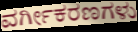
ವರ್ಗೀಕರಣಗಳು